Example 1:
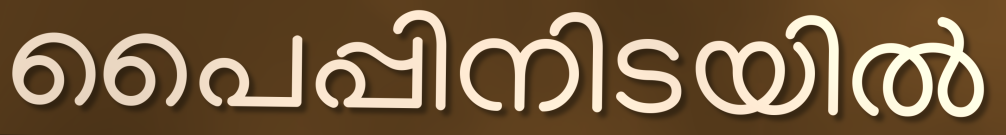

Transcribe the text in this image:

പൈപ്പിനിടയിൽ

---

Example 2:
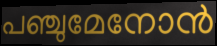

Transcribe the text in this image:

പഞ്ചുമേനോൻ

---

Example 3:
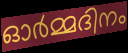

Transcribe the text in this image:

ഓർമ്മദിനം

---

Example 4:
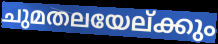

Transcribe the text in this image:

ചുമതലയേല്ക്കും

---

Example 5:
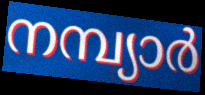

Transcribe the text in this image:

നമ്പ്യാർ